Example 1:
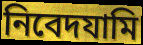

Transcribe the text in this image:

নিবেদযামি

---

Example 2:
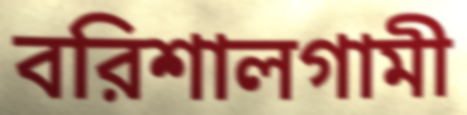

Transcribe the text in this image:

বরিশালগামী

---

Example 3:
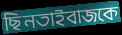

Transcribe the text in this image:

ছিনতাইবাজকে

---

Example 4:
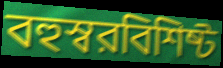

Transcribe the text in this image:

বহুস্বরবিশিষ্ট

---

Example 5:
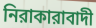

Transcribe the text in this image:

নিরাকারাবাদী